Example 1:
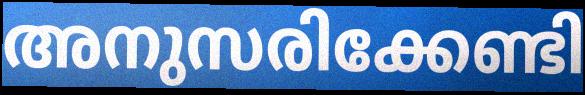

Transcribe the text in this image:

അനുസരിക്കേണ്ടി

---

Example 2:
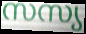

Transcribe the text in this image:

സസ്യ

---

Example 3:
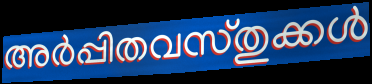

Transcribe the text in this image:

അർപ്പിതവസ്തുക്കൾ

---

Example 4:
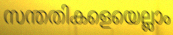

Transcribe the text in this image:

സന്തതികളെയെല്ലാം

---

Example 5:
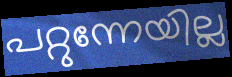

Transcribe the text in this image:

പറ്റുന്നേയില്ല